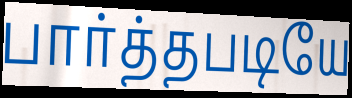
பார்த்தபடியே